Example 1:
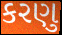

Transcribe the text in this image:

કરણુ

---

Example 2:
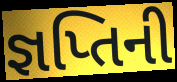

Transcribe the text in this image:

જ્ઞપ્તિની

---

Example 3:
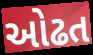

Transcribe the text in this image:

ઓઢત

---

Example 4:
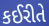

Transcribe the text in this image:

કઈરીતે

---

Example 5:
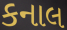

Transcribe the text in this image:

કનાલ